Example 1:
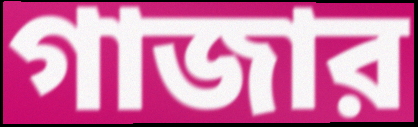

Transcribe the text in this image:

গাজার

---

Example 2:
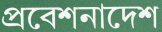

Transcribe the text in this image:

প্রবেশনাদেশ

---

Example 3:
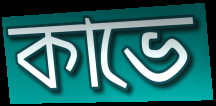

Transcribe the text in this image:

কাভে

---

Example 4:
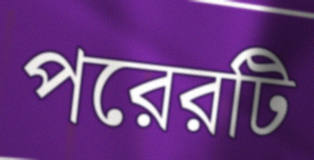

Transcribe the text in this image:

পরেরটি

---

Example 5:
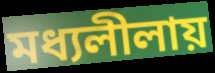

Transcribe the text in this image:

মধ্যলীলায়